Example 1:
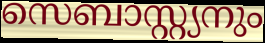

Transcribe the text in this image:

സെബാസ്റ്റ്യനും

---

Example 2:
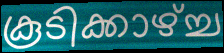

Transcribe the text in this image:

കൂടിക്കാഴ്ച്ച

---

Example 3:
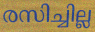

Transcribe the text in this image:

രസിച്ചില്ല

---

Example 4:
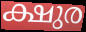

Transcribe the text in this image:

ക്ഷുര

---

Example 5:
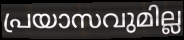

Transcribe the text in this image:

പ്രയാസവുമില്ല